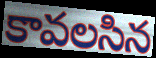
కావలసిన